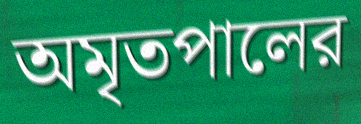
অমৃতপালের